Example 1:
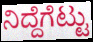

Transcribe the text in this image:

ನಿದ್ದೆಗೆಟ್ಟು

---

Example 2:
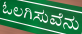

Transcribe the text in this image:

ಓಲಗಿಸುವೆನು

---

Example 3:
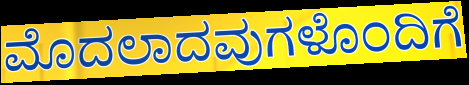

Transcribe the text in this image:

ಮೊದಲಾದವುಗಳೊಂದಿಗೆ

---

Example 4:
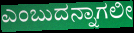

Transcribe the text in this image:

ಎಂಬುದನ್ನಾಗಲೀ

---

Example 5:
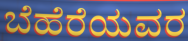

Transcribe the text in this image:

ಬೆಹೆರೆಯವರ